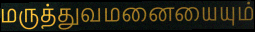
மருத்துவமனையையும்